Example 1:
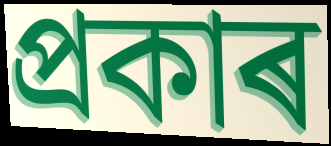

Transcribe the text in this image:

প্ৰকাৰ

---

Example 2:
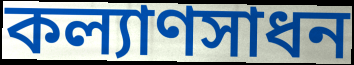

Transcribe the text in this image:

কল্যাণসাধন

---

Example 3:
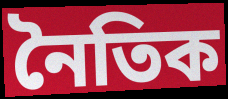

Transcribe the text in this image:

নৈতিক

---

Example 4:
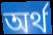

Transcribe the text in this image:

অৰ্থ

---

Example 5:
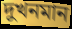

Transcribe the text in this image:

দুখনমান